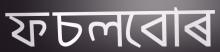
ফচলবোৰ